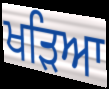
ਖੜਿਆ